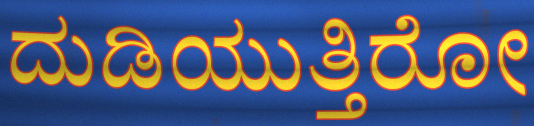
ದುಡಿಯುತ್ತಿರೋ